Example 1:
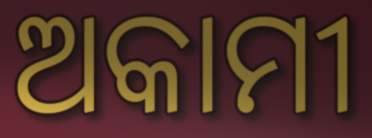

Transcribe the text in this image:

ଅକାମୀ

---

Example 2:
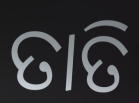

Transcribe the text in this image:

ତାତି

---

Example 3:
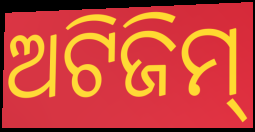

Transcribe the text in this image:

ଅଟିଜିମ୍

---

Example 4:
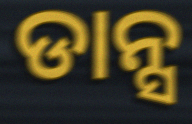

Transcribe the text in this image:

ଡାନ୍ସ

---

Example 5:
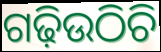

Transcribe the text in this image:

ଗଢ଼ିଉଠିଚି